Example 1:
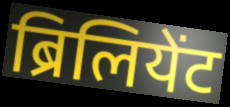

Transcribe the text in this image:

ब्रिलियेंट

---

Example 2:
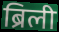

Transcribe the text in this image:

ब्रिली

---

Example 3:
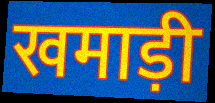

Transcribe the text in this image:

खमाड़ी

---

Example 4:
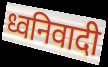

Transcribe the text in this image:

ध्वनिवादी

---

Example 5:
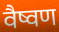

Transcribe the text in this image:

वैष्वण